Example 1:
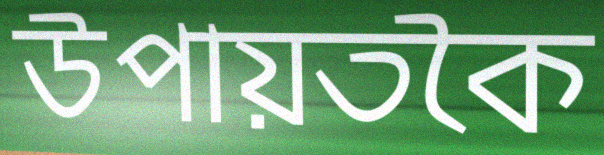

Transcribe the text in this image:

উপায়তকৈ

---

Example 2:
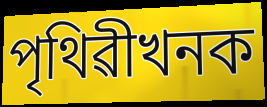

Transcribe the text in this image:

পৃথিৱীখনক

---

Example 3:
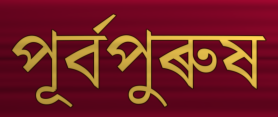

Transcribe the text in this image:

পূৰ্বপুৰুষ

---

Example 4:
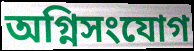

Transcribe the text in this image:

অগ্নিসংযোগ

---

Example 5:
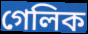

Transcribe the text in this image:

গেলিক